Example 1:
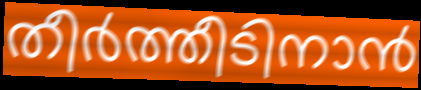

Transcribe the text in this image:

തീർത്തീടിനാൻ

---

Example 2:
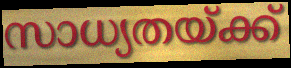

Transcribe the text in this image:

സാധ്യതയ്ക്ക്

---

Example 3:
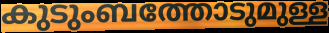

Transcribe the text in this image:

കുടുംബത്തോടുമുള്ള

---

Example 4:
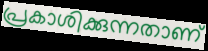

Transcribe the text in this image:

പ്രകാശിക്കുന്നതാണ്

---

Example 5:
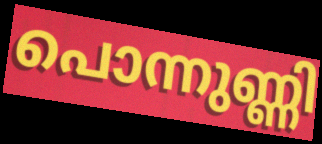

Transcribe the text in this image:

പൊന്നുണ്ണി